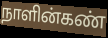
நாளின்கண்